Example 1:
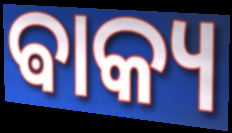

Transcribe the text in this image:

ଵାକ୍ୟ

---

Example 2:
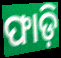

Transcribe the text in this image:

ଫାଡ଼ି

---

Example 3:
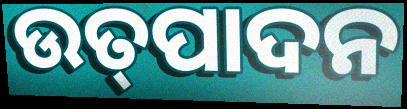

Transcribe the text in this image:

ଉତ୍‌ପାଦନ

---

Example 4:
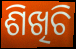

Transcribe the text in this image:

ଶିଖିଚି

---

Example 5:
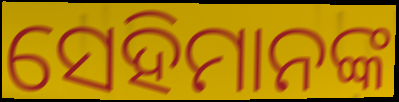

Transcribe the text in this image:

ସେହିମାନଙ୍କ